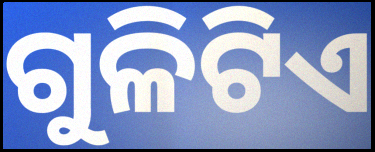
ଗୁଳିଟିଏ